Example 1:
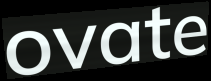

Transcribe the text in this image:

ovate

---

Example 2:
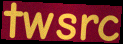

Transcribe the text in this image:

twsrc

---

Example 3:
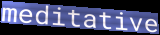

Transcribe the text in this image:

meditative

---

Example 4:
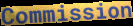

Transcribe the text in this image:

Commission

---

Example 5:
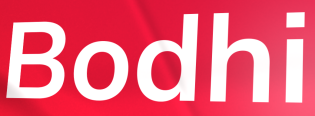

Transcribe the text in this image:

Bodhi